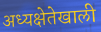
अध्यक्षेतेखाली